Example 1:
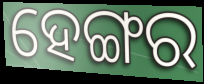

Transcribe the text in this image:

ହେଙ୍ଗର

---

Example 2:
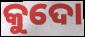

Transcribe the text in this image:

କୁଦୋ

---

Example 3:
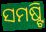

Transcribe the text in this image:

ସମଷ୍ଟି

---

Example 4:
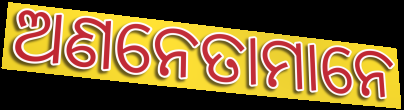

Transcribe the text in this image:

ଅଣନେତାମାନେ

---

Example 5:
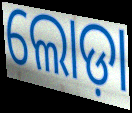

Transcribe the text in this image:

ଲୋଡ଼ା